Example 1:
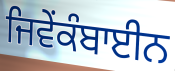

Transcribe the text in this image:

ਜਿਵੇਂਕੰਬਾਈਨ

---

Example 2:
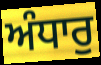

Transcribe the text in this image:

ਅੰਧਾਰੁ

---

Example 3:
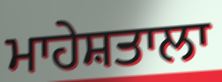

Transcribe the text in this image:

ਮਾਹੇਸ਼ਤਾਲਾ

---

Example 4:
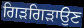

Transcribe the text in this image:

ਗਿੜਗਿੜਾਉਣ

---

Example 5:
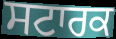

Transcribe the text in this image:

ਸਟਾਰਕ